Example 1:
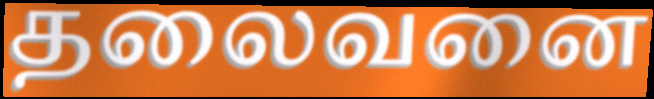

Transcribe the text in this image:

தலைவனை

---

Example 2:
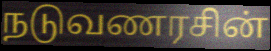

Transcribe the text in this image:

நடுவணரசின்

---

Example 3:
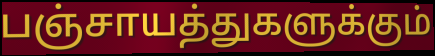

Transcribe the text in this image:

பஞ்சாயத்துகளுக்கும்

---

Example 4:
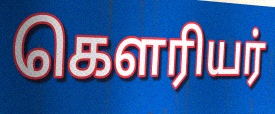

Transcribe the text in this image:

கௌரியர்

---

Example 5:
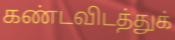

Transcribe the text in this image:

கண்டவிடத்துக்